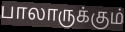
பாலாருக்கும்